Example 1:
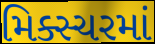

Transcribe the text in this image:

મિક્સ્ચરમાં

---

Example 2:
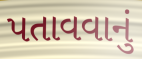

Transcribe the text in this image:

પતાવવાનું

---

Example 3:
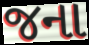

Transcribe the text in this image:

જના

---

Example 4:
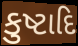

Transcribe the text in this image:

કુષ્ટાદિ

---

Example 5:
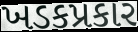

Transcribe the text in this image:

ખડકપ્રકાર